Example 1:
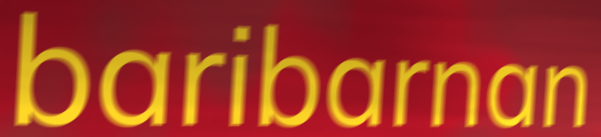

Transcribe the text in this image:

baribarnan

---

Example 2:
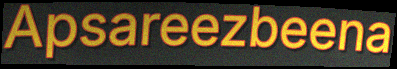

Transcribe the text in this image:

Apsareezbeena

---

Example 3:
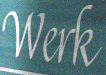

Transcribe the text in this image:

Werk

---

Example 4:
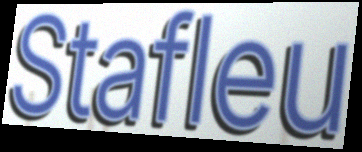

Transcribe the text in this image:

Stafleu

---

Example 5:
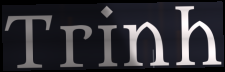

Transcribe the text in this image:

Trinh